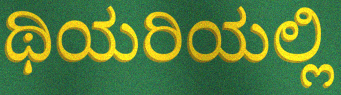
ಥಿಯರಿಯಲ್ಲಿ